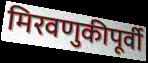
मिरवणुकीपूर्वी